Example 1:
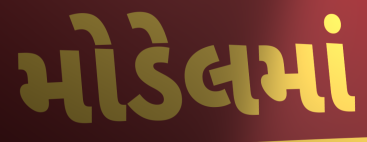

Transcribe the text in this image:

મોડેલમાં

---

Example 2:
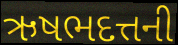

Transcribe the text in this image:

ઋષભદત્તની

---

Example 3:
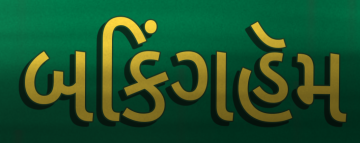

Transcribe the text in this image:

બકિંગહૅમ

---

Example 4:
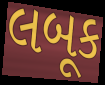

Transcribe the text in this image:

લબૂક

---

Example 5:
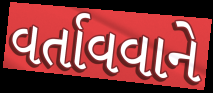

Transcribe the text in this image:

વર્તાવવાને